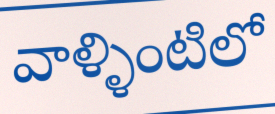
వాళ్ళింటిలో